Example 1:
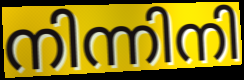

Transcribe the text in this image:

നിന്നിനി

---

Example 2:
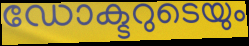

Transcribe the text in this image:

ഡോക്ടറുടെയും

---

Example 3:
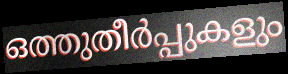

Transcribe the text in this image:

ഒത്തുതീർപ്പുകളും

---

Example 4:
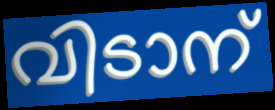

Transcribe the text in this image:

വിടാന്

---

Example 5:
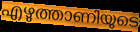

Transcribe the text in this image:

എഴുത്താണിയുടെ